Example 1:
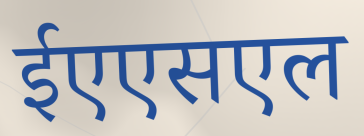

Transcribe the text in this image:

ईएएसएल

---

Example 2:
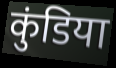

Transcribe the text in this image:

कुंडिया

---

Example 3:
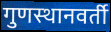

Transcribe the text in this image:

गुणस्थानवर्ती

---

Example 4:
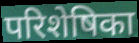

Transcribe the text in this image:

परिशेषिका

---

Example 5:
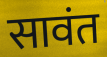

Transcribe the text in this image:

सावंत